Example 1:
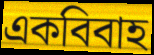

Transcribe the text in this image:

একবিবাহ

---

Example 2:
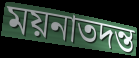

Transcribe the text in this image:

ময়নাতদন্ত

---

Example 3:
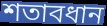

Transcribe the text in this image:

শতাবধান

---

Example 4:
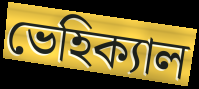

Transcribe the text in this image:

ভেহিক্যাল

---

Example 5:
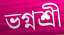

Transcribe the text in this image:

ভগ্নশ্রী